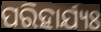
ପରିହାର୍ଯ୍ୟଃ